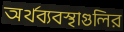
অর্থব্যবস্থাগুলির